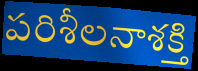
పరిశీలనాశక్తి